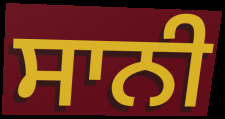
ਸਾਨੀ